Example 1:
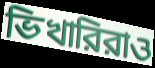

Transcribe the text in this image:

ভিখারিরাও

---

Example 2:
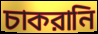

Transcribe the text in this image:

চাকরানি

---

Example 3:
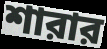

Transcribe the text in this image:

শারার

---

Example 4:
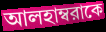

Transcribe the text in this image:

আলহাম্বরাকে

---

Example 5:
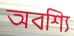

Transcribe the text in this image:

অবশ্যি